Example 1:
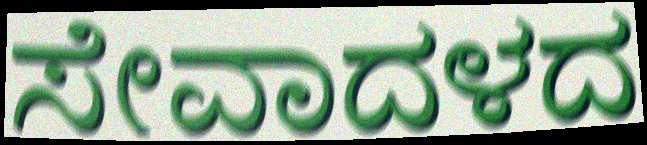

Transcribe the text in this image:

ಸೇವಾದಳದ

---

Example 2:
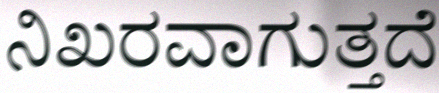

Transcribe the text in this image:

ನಿಖರವಾಗುತ್ತದೆ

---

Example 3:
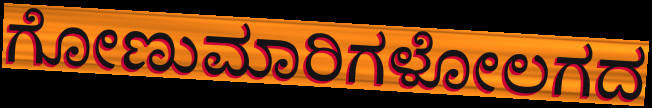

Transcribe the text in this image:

ಗೋಣುಮಾರಿಗಳೋಲಗದ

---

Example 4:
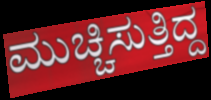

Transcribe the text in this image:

ಮುಚ್ಚಿಸುತ್ತಿದ್ದ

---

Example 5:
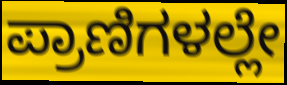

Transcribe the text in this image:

ಪ್ರಾಣಿಗಳಲ್ಲೇ